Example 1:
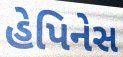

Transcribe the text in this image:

હેપિનેસ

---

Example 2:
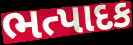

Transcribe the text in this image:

ભત્પાદક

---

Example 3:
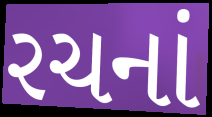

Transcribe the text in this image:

રચનાં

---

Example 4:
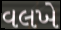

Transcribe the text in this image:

વલખે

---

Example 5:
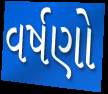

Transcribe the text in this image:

વર્ષણો